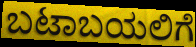
ಬಟಾಬಯಲಿಗೆ